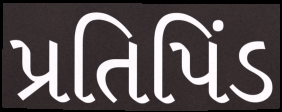
પ્રતિપિંડ